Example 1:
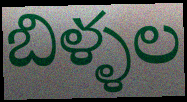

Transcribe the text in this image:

బిళ్ళల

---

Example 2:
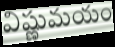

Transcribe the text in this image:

విష్ణుమయం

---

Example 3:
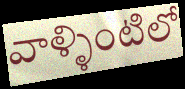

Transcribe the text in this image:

వాళ్ళింటిలో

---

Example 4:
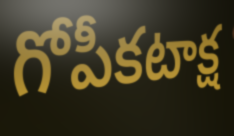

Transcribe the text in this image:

గోపీకటాక్ష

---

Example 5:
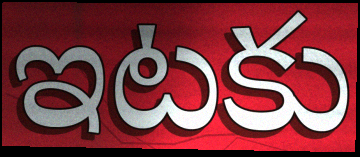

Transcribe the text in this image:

ఇటకు